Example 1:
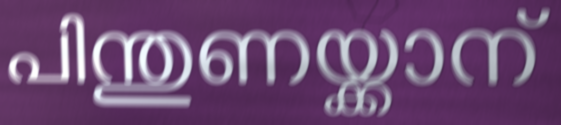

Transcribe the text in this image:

പിന്തുണയ്ക്കാന്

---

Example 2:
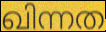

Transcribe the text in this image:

ഖിന്നത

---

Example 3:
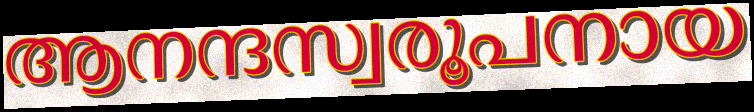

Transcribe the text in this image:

ആനന്ദസ്വരൂപനായ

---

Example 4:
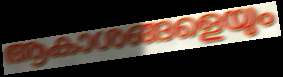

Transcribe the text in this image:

ആകാശങ്ങളെയും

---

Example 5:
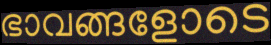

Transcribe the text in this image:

ഭാവങ്ങളോടെ